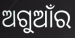
ଅଗୁଆଁର